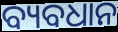
ବ୍ୟବଧାନ